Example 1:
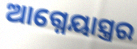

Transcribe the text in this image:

ଆଗ୍ନେୟାସ୍ତ୍ରର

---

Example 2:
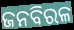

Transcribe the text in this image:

ଜନବିରଳ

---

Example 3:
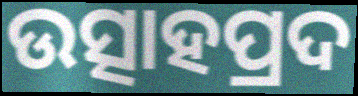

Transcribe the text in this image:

ଉତ୍ସାହପ୍ରଦ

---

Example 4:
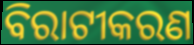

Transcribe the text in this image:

ବିରାଟୀକରଣ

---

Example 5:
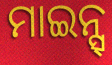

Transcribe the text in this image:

ମାଇନ୍ସ୍